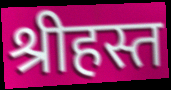
श्रीहस्त